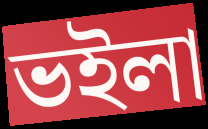
ভইলা